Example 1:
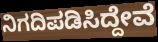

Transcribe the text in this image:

ನಿಗದಿಪಡಿಸಿದ್ದೇವೆ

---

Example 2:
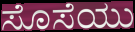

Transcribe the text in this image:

ಸೊಸೆಯು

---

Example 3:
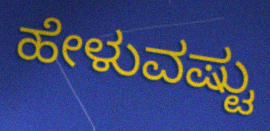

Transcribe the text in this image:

ಹೇಳುವಷ್ಟು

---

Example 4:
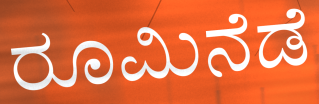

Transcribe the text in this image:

ರೂಮಿನೆಡೆ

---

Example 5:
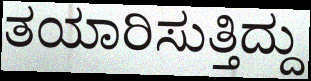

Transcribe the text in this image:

ತಯಾರಿಸುತ್ತಿದ್ದು